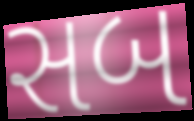
સબ